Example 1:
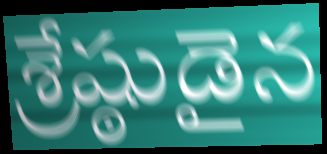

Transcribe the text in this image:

శ్రేష్ఠుడైన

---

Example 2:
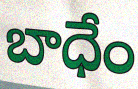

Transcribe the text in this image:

బాధేం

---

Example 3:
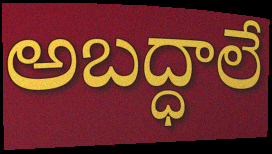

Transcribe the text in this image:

అబద్ధాలే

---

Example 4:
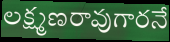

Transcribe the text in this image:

లక్ష్మణరావుగారనే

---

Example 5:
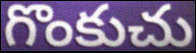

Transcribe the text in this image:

గొంకుచు